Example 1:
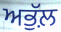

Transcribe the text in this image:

ਅਭੁੱਲ਼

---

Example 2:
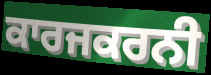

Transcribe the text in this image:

ਕਾਰਜਕਰਨੀ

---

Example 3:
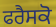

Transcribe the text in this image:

ਫਰੈਸਕੋ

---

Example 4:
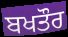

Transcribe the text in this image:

ਬਖਤੌਰ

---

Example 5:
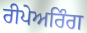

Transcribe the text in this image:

ਰੀਪੇਅਰਿੰਗ